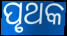
ପୃଥକ